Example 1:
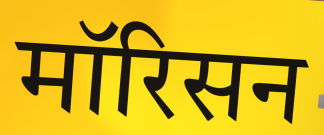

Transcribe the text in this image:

मॉरिसन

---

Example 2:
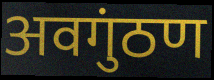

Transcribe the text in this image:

अवगुंठण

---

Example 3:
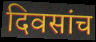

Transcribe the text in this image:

दिवसांच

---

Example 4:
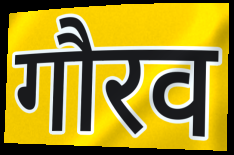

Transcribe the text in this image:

गौरव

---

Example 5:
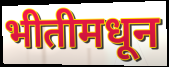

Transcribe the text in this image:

भीतीमधून